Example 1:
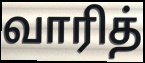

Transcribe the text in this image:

வாரித்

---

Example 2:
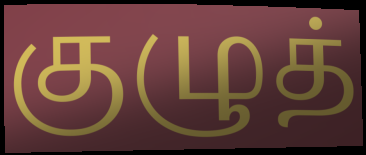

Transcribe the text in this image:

குழுத்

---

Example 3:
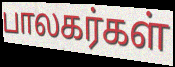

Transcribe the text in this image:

பாலகர்கள்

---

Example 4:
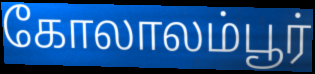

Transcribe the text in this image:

கோலாலம்பூர்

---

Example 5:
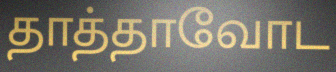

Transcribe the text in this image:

தாத்தாவோட